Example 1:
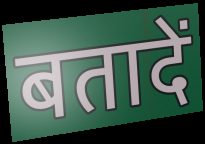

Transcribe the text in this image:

बतादें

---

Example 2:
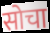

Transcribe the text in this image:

सोचा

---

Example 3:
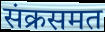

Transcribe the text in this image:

संक्रसमत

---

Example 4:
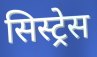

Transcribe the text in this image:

सिस्ट्रेस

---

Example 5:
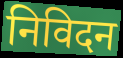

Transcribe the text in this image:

निविदन